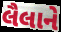
લૈલાને